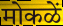
मोकळें